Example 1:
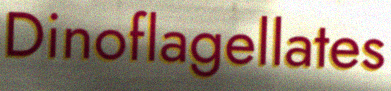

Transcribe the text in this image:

Dinoflagellates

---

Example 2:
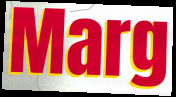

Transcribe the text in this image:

Marg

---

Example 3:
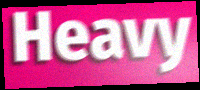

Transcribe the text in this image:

Heavy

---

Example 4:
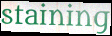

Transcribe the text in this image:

staining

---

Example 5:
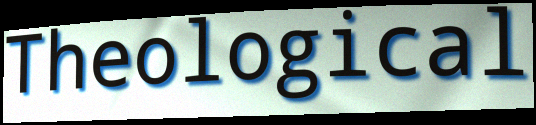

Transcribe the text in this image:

Theological